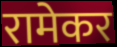
रामेकर